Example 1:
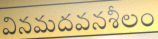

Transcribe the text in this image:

వినమదవనశీలం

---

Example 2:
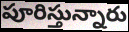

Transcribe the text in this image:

పూరిస్తున్నారు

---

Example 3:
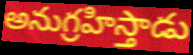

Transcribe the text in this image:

అనుగ్రహిస్తాడు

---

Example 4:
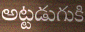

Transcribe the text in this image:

అట్టడుగుకి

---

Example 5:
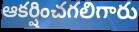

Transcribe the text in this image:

ఆకర్షించగలిగారు